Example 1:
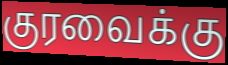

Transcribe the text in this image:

குரவைக்கு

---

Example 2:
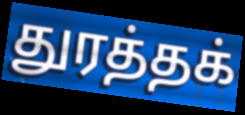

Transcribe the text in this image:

துரத்தக்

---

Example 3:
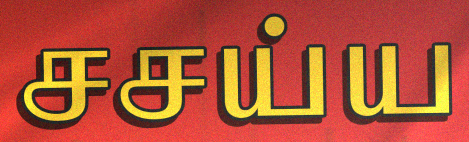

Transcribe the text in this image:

சசய்ய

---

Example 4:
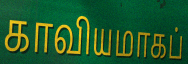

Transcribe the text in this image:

காவியமாகப்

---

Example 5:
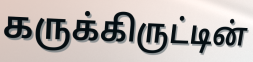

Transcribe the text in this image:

கருக்கிருட்டின்